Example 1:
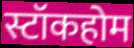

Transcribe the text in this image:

स्टॉकहोम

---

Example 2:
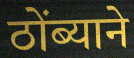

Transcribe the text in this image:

ठोंब्याने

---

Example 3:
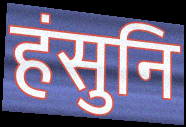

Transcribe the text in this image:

हंसुनि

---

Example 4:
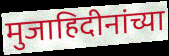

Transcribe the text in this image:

मुजाहिदीनांच्या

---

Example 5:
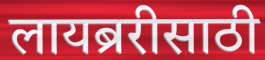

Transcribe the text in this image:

लायब्ररीसाठी